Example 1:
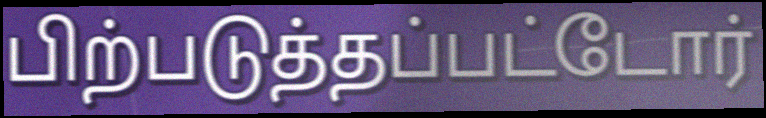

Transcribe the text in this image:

பிற்படுத்தப்பட்டோர்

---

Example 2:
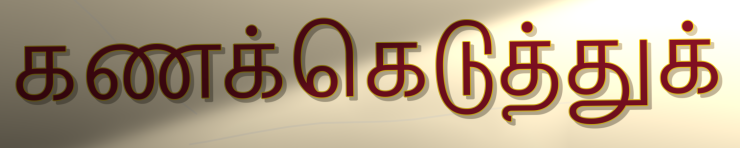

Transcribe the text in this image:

கணக்கெடுத்துக்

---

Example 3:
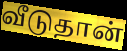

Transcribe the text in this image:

வீடுதான்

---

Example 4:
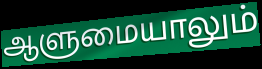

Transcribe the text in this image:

ஆளுமையாலும்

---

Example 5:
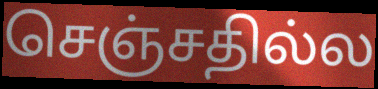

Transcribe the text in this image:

செஞ்சதில்ல